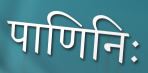
पाणिनिः